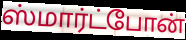
ஸ்மார்ட்போன்